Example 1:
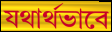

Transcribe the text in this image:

যথার্থভাবে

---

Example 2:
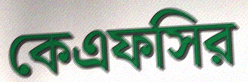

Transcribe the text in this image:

কেএফসির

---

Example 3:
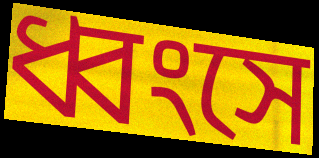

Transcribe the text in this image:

ধ্বংসে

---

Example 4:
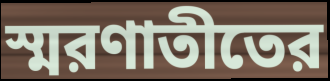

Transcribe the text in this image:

স্মরণাতীতের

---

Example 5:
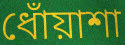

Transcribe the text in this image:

ধোঁয়াশা